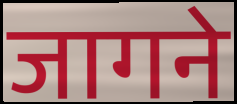
जागने